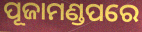
ପୂଜାମଣ୍ଡପରେ